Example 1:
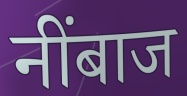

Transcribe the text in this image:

नींबाज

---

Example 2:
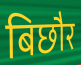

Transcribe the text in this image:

बिछौर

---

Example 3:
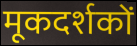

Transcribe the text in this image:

मूकदर्शकों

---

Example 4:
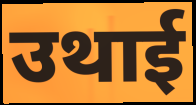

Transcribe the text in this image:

उथाई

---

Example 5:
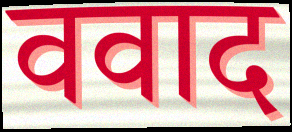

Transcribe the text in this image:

ववाद